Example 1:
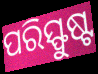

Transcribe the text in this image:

ପରିସ୍ଫୁଷ୍ଟ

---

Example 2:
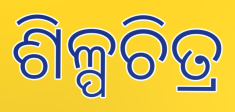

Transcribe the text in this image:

ଶିଳ୍ପଚିତ୍ର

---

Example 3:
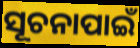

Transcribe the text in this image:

ସୂଚନାପାଇଁ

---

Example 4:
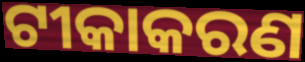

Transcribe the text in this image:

ଟୀକାକରଣ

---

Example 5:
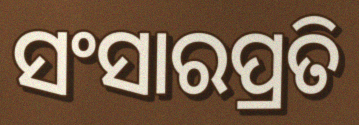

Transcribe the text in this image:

ସଂସାରପ୍ରତି